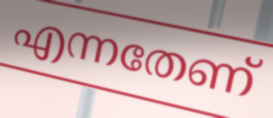
എന്നതേണ്